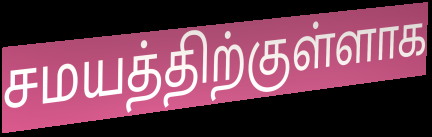
சமயத்திற்குள்ளாக